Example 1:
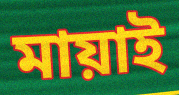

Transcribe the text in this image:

মায়াই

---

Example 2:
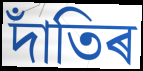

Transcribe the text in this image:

দাঁতিৰ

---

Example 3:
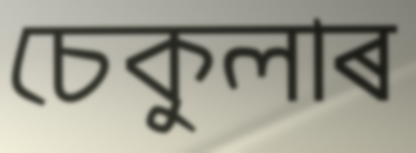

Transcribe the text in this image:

চেকুলাৰ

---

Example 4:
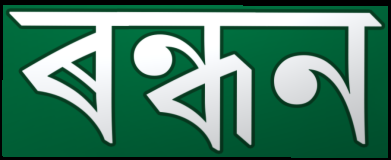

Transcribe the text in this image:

ৰন্ধন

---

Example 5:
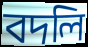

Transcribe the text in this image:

বদলি